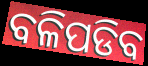
ବଳିପଡିବ